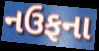
નઉફના